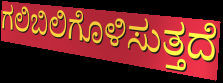
ಗಲಿಬಿಲಿಗೊಳಿಸುತ್ತದೆ